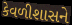
કેવળીશાસને